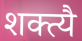
शक्त्यै